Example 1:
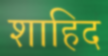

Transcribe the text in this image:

शाहिद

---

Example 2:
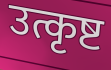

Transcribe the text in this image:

उत्कृष्ट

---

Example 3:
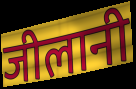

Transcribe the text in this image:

जीलानी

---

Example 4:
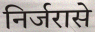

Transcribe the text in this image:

निर्जरासे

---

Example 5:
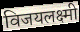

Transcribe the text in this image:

विजयलक्ष्मी